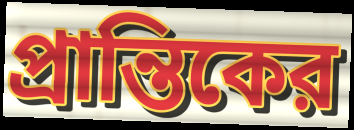
প্রান্তিকের